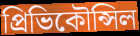
প্রিভিকৌন্সিল